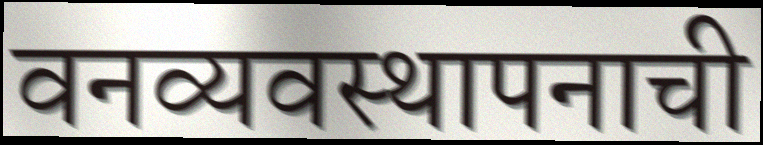
वनव्यवस्थापनाची